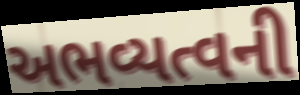
અભવ્યત્વની